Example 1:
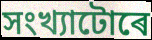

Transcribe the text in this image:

সংখ্যাটোৰে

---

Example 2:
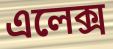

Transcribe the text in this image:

এলেক্স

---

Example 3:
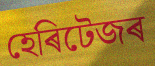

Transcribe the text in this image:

হেৰিটেজৰ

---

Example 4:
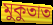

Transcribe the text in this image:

মুকুতাত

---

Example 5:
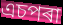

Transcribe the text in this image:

এচপৰা